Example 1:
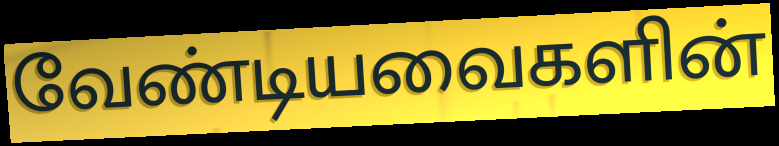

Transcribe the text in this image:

வேண்டியவைகளின்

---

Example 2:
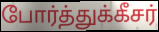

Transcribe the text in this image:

போர்த்துக்கீசர்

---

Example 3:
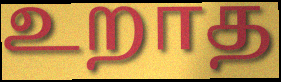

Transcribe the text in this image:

உறாத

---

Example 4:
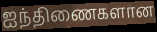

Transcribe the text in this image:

ஐந்திணைகளான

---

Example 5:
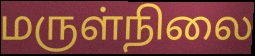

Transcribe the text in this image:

மருள்நிலை